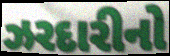
ઝરદારીનો